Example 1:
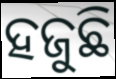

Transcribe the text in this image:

ହଜୁଛି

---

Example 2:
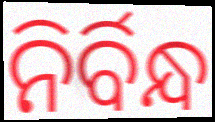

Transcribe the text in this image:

ନିର୍ବିନ୍ଧ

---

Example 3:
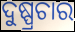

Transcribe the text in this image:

ଦୁଷ୍ପ୍ରଚାର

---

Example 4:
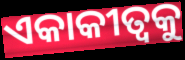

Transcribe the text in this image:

ଏକାକୀତ୍ଵକୁ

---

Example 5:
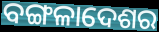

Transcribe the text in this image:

ବଙ୍ଗଳାଦେଶର